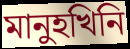
মানুহখিনি